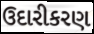
ઉદારીકરણ